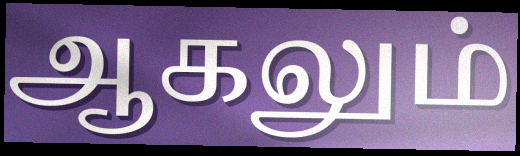
ஆகலும்